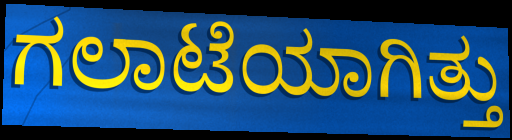
ಗಲಾಟೆಯಾಗಿತ್ತು